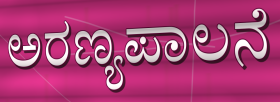
ಅರಣ್ಯಪಾಲನೆ